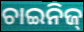
ଚାଇନିଜ୍